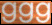
ggg